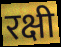
रक्षी